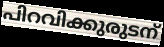
പിറവിക്കുരുടന്